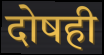
दोषही